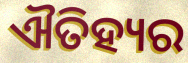
ଐତିହ୍ୟର